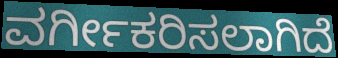
ವರ್ಗೀಕರಿಸಲಾಗಿದೆ